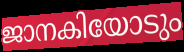
ജാനകിയോടും